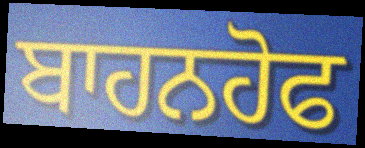
ਬਾਹਨਹੋਫ